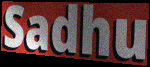
Sadhu